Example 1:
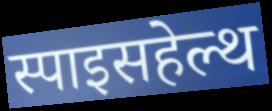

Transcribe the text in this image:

स्पाइसहेल्थ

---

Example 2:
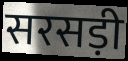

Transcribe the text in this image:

सरसड़ी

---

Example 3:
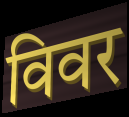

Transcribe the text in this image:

विवर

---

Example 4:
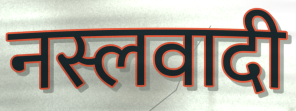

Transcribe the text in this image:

नस्लवादी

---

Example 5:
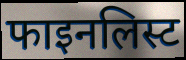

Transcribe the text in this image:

फाइनलिस्ट